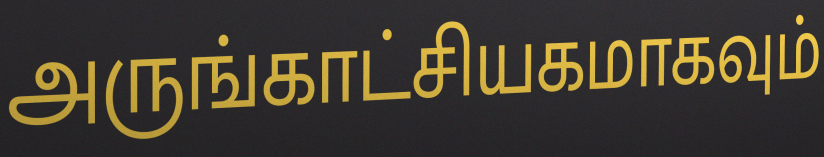
அருங்காட்சியகமாகவும்